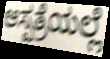
ಆಸ್ಪತ್ರೆಯಲ್ಲೆ